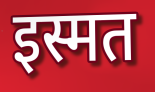
इस्मत